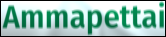
Ammapettai